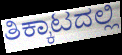
ತಿಕ್ಕಾಟದಲ್ಲಿ